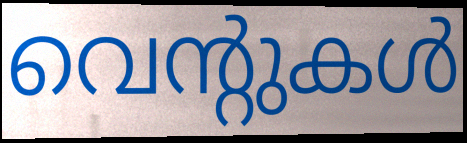
വെന്റുകൾ